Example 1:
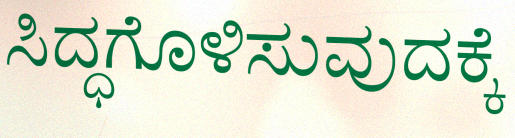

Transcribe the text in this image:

ಸಿದ್ಧಗೊಳಿಸುವುದಕ್ಕೆ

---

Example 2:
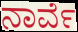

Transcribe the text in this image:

ನಾರ್ವೆ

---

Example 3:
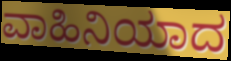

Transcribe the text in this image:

ವಾಹಿನಿಯಾದ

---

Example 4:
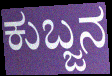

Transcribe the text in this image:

ಕುಬ್ಜನ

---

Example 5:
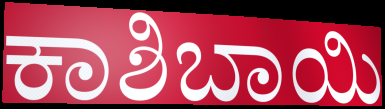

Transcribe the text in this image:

ಕಾಶಿಬಾಯಿ